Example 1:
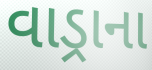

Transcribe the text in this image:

વાડ્રાના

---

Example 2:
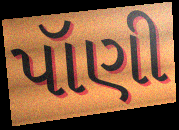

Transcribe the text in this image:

પૉણી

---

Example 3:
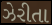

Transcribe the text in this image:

ઝેરીતા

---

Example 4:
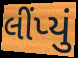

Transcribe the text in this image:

લીંપ્યું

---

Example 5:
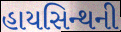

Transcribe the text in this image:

હાયસિન્થની